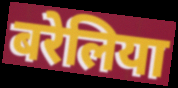
बरेलिया